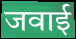
जवाई